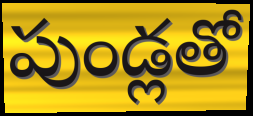
పుండ్లతో